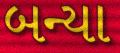
બન્યા